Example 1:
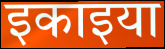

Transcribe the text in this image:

इकाइया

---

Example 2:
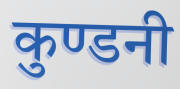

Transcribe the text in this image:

कुण्डनी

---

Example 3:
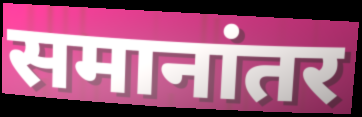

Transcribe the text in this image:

समानांतर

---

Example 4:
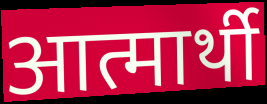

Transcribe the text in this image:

आत्मार्थी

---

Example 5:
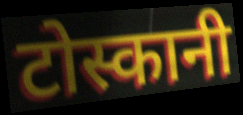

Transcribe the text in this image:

टोस्कानी